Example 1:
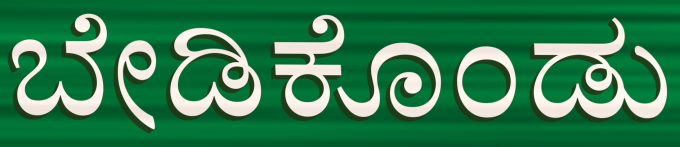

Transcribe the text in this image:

ಬೇಡಿಕೊಂಡು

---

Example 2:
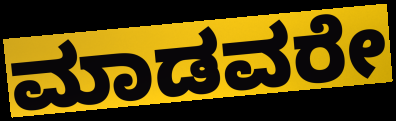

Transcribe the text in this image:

ಮಾಡವರೇ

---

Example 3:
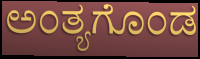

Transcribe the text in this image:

ಅಂತ್ಯಗೊಂಡ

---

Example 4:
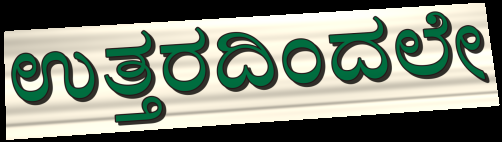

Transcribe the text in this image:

ಉತ್ತರದಿಂದಲೇ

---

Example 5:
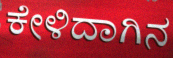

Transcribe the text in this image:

ಕೇಳಿದಾಗಿನ